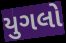
યુગલો